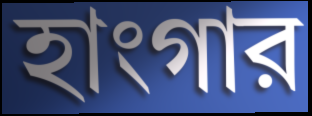
হাংগার